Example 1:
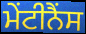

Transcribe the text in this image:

ਮੇਂਟੀਨੈਂਸ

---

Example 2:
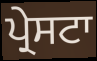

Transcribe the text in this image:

ਪ੍ਰੇਸਟਾ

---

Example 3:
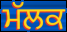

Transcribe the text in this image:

ਮੱਲਕ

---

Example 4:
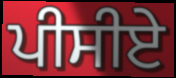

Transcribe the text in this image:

ਪੀਸੀਏ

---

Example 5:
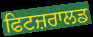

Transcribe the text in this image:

ਫਿਟਜ਼ਰਾਲਡ